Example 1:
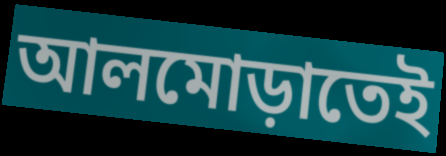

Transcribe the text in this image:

আলমোড়াতেই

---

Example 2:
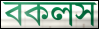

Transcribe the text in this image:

বকলস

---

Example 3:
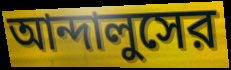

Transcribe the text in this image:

আন্দালুসের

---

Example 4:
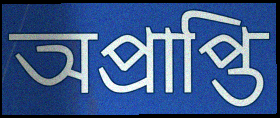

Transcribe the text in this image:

অপ্রাপ্তি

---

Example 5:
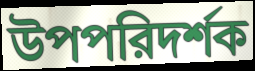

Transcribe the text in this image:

উপপরিদর্শক